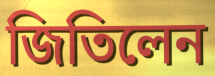
জিতিলেন